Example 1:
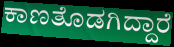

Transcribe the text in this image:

ಕಾಣತೊಡಗಿದ್ದಾರೆ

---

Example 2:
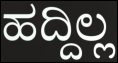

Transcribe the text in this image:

ಹದ್ದಿಲ್ಲ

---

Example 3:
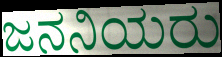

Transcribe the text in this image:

ಜನನಿಯರು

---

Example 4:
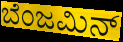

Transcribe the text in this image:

ಬೆಂಜಮಿನ್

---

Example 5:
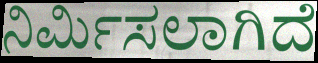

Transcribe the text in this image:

ನಿರ್ಮಿಸಲಾಗಿದೆ